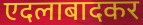
एदलाबादकर